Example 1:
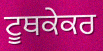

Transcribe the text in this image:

ਟੂਥਕੇਕਰ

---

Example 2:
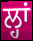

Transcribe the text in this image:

ਲ੍ਹਾਂ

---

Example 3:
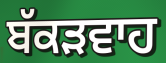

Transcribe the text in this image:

ਬੱਕੜਵਾਹ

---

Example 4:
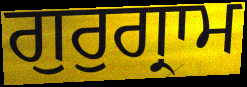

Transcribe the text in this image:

ਗੁਰੁਗ੍ਰਾਮ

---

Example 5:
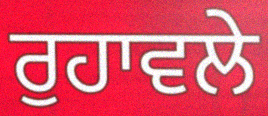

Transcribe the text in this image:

ਰੁਹਾਵਲੇ